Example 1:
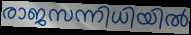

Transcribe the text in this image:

രാജസന്നിധിയിൽ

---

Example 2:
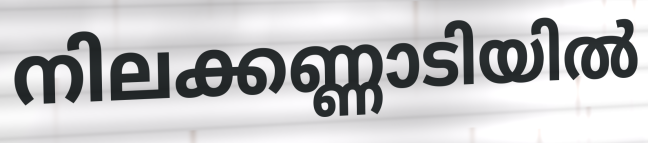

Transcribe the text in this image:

നിലക്കണ്ണാടിയിൽ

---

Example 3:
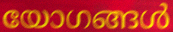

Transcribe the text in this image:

യോഗങ്ങൾ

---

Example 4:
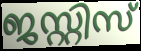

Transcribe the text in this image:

ജസ്റ്റിസ്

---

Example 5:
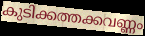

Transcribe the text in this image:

കുടിക്കത്തക്കവണ്ണം